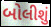
બોલીશું